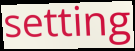
setting